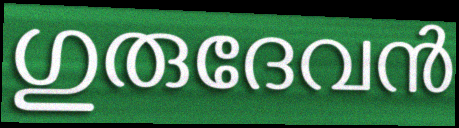
ഗുരുദേവൻ